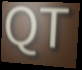
QT